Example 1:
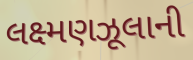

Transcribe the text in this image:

લક્ષ્મણઝૂલાની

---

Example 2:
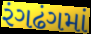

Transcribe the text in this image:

રંગઢંગમાં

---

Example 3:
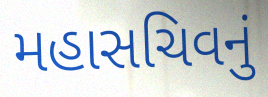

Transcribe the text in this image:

મહાસચિવનું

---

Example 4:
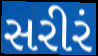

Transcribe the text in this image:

સરીરં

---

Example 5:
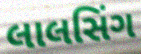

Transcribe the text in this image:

લાલસિંગ